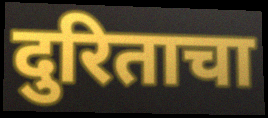
दुरिताचा